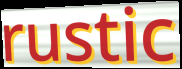
rustic